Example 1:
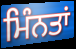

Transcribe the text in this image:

ਮਿੰਨਤਾਂ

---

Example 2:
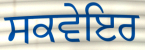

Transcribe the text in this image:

ਸਕਵੇਇਰ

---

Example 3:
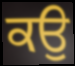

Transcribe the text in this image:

ਕਉੁ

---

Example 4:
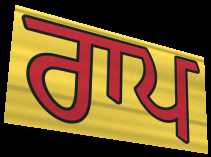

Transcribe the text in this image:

ਰਾਪ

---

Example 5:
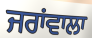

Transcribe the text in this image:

ਜਰਾਂਵਾਲਾ